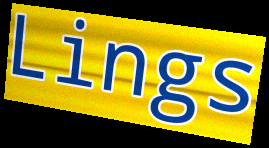
Lings